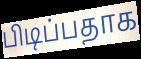
பிடிப்பதாக